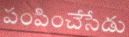
పంపించేసేడు